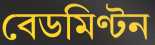
বেডমিণ্টন